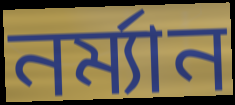
নর্ম্যান